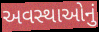
અવસ્થાઓનું